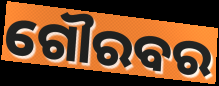
ଗୌରବର